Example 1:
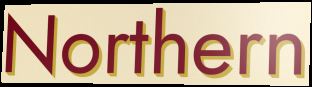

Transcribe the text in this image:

Northern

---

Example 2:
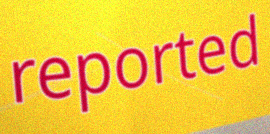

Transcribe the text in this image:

reported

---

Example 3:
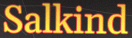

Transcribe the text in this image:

Salkind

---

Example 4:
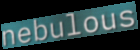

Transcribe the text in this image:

nebulous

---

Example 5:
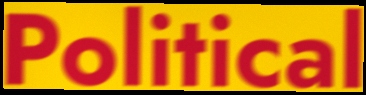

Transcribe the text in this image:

Political